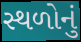
સ્થળોનું